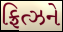
ફ્રિત્ઝને